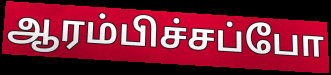
ஆரம்பிச்சப்போ